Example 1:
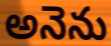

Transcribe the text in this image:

అనెను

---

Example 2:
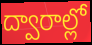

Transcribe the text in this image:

ద్వారాల్లో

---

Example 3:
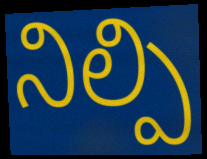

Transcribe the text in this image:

నిల్పి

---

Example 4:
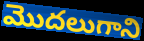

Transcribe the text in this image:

మొదలుగాని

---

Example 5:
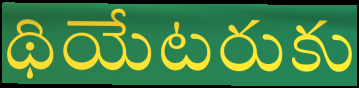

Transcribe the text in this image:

థియేటరుకు